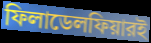
ফিলাডেলফিয়ারই